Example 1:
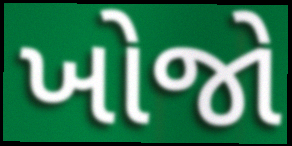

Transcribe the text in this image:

ખોજો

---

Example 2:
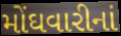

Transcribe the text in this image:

મોંઘવારીનાં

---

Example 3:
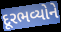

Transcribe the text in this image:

દૂરભવ્યોને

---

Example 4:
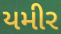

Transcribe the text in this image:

યમીર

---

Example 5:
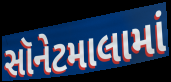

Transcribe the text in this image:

સૉનેટમાલામાં